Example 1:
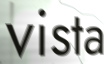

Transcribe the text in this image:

vista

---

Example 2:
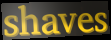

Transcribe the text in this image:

shaves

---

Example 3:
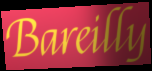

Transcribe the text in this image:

Bareilly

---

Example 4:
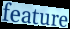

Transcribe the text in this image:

feature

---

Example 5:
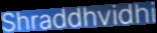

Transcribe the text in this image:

Shraddhvidhi